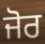
ਜੋਰ